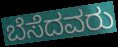
ಬೆಸೆದವರು